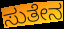
ಸುತೇನ